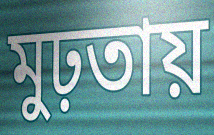
মুঢ়তায়